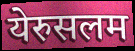
येरुसलम